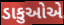
ડાકુઓએ